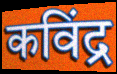
कविंद्र